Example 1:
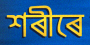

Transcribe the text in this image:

শৰীৰে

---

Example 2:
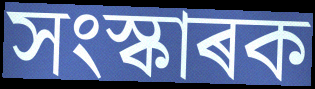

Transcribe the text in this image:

সংস্কাৰক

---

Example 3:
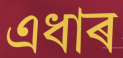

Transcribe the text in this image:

এধাৰ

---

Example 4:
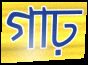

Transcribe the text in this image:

গাঢ়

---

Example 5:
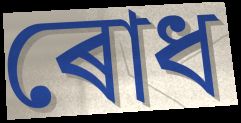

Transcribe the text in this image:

ৰোধ